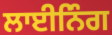
ਲਾਈਨਿੰਗ